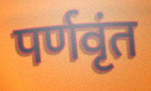
पर्णवृंत